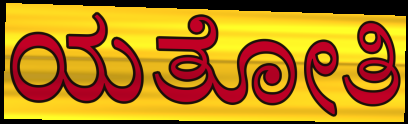
ಯತೋತಿ